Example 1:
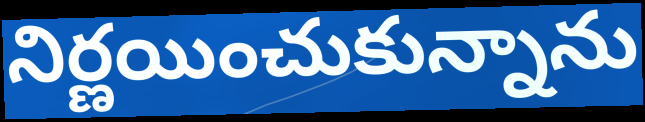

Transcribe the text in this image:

నిర్ణయించుకున్నాను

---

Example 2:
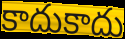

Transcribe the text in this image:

కాదుకాదు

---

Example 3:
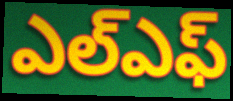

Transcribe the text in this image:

ఎల్ఎఫ్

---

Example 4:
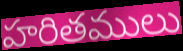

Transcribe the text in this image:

హరితములు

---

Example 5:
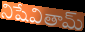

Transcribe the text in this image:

నిషేవితామ్